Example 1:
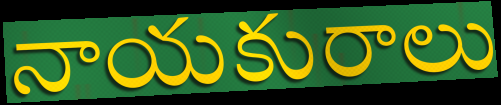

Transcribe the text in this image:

నాయకురాలు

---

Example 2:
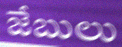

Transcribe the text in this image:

జేబులు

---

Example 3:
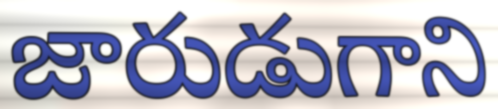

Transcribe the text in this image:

జారుడుగాని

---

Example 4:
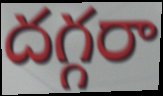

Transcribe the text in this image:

దగ్గరా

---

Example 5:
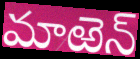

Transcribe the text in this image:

మాఱెన్